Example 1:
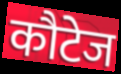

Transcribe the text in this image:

कौटेज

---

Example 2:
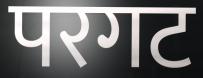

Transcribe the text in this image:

परगट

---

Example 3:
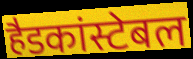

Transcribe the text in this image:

हैडकांस्टेबल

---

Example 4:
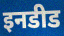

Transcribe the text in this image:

इनडीड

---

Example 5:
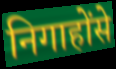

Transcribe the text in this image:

निगाहोंसे